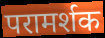
परामर्शक